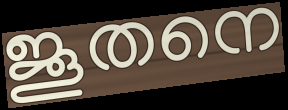
ജൂതനെ